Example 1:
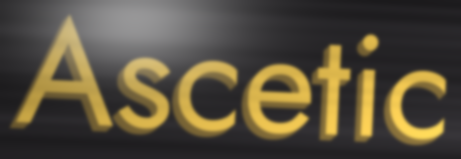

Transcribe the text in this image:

Ascetic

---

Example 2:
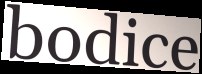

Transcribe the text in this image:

bodice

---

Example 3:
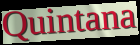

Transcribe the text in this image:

Quintana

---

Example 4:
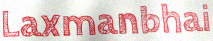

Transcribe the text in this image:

Laxmanbhai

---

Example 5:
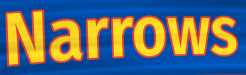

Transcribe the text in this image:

Narrows